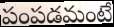
పంపడమంటే